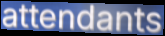
attendants